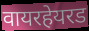
वायरहेयरड